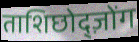
ताशिछोद्ज़ोंग